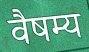
वैषम्य